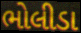
ભોલીડા